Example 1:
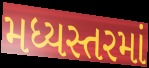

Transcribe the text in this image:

મધ્યસ્તરમાં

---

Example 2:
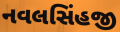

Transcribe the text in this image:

નવલસિંહજી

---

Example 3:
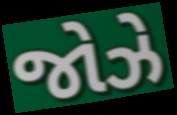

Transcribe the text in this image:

જોઝે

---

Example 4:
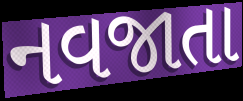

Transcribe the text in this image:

નવજાતા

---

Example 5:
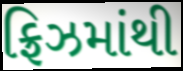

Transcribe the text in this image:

ફ્રિઝમાંથી